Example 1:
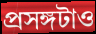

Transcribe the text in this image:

প্রসঙ্গটাও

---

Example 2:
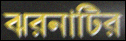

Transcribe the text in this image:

ঝরনাটির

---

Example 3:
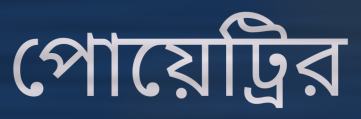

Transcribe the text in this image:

পোয়েট্রির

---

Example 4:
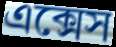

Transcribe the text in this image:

এক্সেস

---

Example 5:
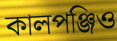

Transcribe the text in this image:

কালপঞ্জিও